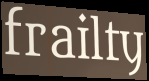
frailty